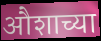
औशाच्या